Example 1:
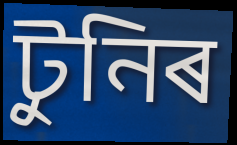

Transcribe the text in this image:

টুনিৰ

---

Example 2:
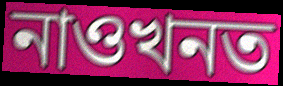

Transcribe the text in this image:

নাওখনত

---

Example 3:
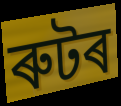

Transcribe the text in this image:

ৰুটৰ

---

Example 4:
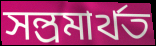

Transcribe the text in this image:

সন্ত্ৰমাৰ্থত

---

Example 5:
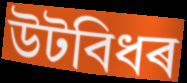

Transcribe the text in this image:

উটবিধৰ